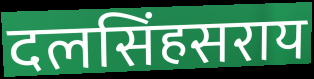
दलसिंहसराय